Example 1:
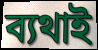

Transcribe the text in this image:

ব্যথাই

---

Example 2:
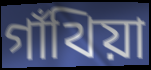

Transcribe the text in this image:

গাঁথিয়া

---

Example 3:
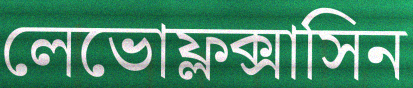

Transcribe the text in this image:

লেভোফ্লক্সাসিন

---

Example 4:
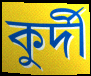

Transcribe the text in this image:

কুর্দী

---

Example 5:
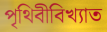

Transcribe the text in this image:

পৃথিবীবিখ্যাত